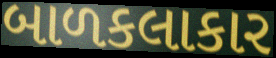
બાળકલાકાર